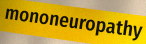
mononeuropathy